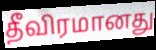
தீவிரமானது